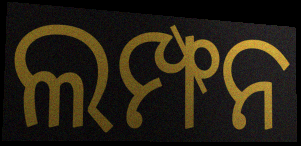
ଲମ୍ଫନ